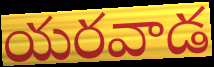
యరవాడ